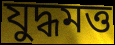
যুদ্ধমত্ত